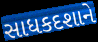
સાધકદશાને